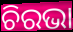
ଚିରଭା